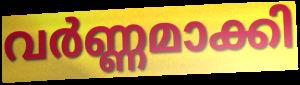
വർണ്ണമാക്കി